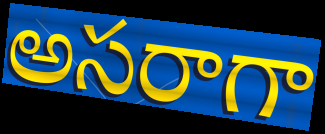
అసరాగా